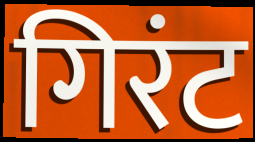
गिरंट